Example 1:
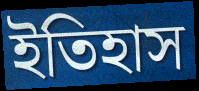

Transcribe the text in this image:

ইতিহাস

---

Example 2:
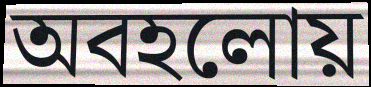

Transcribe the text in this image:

অবহলোয়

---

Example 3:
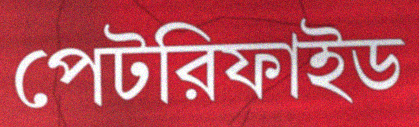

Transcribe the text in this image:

পেটরিফাইড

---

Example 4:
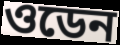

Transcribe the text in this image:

ওডেন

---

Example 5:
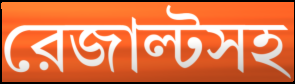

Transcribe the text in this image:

রেজাল্টসহ